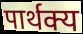
पार्थक्य